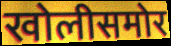
खोलीसमोर